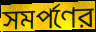
সমর্পণের